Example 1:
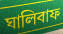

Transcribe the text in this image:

ঘালিবাফ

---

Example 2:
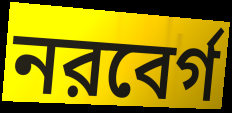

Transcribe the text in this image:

নরবের্গ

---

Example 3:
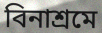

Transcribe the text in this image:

বিনাশ্রমে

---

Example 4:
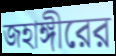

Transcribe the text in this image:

জহাঙ্গীরের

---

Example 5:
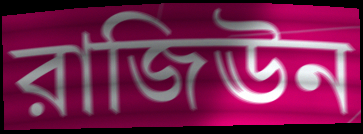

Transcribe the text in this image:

রাজিঊন